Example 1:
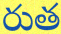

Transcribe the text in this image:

రుత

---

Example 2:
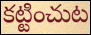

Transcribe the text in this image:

కట్టించుట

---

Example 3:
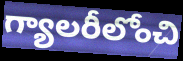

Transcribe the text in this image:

గ్యాలరీలోంచి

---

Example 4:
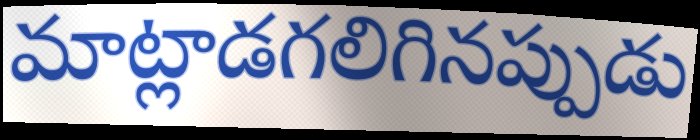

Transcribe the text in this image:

మాట్లాడగలిగినప్పుడు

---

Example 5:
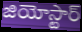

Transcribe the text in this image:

జియోస్టార్